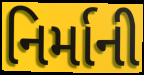
નિર્માની